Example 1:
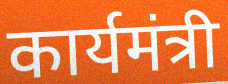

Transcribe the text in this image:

कार्यमंत्री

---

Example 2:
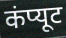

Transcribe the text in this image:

कंप्यूट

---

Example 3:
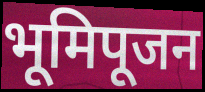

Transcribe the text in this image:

भूमिपूजन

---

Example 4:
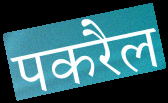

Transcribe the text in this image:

पकरैल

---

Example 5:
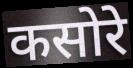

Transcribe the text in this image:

कसोरे